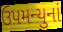
ઉપમન્યુનાં